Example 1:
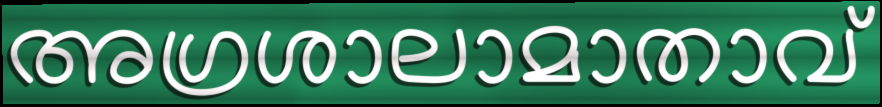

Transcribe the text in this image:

അഗ്രശാലാമാതാവ്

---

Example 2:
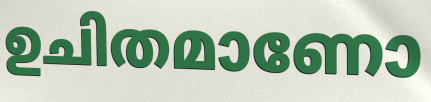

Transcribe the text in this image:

ഉചിതമാണോ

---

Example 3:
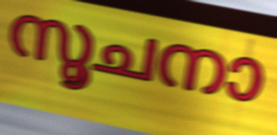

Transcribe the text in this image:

സൂചനാ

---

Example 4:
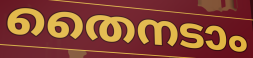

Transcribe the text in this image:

തൈനടാം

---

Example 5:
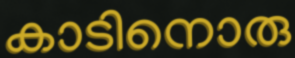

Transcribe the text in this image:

കാടിനൊരു